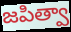
జపిత్వా